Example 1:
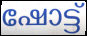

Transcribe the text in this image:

ഷോട്ട്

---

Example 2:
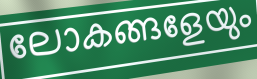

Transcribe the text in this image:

ലോകങ്ങളേയും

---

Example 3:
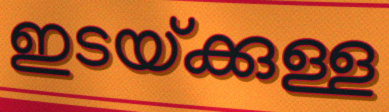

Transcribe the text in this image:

ഇടയ്‌ക്കുള്ള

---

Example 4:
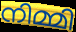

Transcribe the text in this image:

നിമ്മി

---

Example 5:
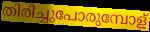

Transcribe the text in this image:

തിരിച്ചുപോരുമ്പോള്